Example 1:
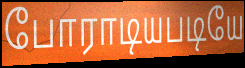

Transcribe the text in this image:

போராடியபடியே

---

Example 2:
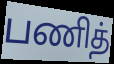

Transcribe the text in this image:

பணித்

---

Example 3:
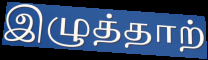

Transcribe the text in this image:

இழுத்தாற்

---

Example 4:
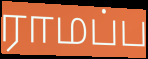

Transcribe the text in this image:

ராமப்ப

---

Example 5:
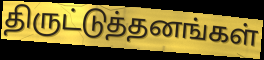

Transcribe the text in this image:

திருட்டுத்தனங்கள்